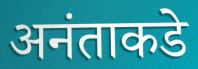
अनंताकडे